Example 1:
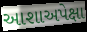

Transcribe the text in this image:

આશાઅપેક્ષા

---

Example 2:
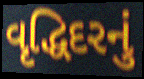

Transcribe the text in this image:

વૃદ્ધિદરનું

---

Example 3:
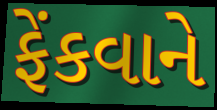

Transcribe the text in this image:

ફેંકવાને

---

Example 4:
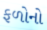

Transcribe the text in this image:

ફળોનો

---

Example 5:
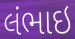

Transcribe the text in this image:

લંભાઇ